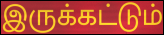
இருக்கட்டும்